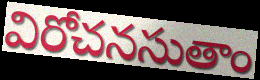
విరోచనసుతాం